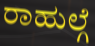
ರಾಹುಲ್ಗೆ